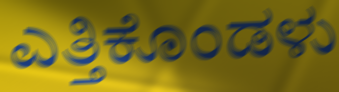
ಎತ್ತಿಕೊಂಡಳು